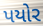
પયોર